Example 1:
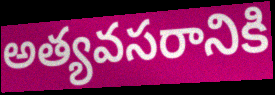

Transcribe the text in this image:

అత్యవసరానికి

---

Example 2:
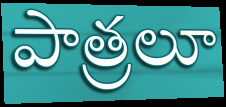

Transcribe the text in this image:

పాత్రలూ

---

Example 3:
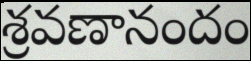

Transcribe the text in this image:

శ్రవణానందం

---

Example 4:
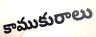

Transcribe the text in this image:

కాముకురాలు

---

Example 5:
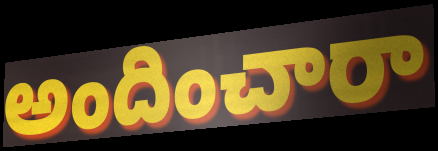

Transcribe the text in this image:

అందించారా